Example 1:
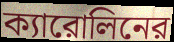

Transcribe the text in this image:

ক্যারোলিনের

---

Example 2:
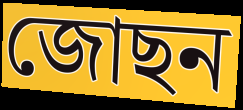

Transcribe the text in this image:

জোছন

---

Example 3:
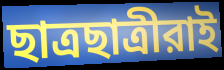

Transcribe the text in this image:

ছাত্রছাত্রীরাই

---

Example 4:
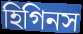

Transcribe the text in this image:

হিগিনস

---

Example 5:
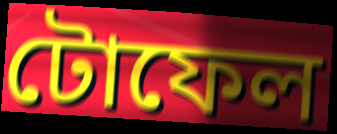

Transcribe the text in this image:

টোফেল